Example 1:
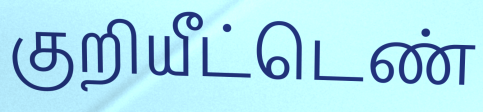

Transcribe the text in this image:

குறியீட்டெண்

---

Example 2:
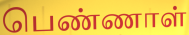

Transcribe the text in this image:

பெண்ணாள்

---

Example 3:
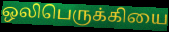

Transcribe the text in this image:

ஒலிபெருக்கியை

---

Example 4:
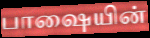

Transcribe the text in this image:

பாஷையின்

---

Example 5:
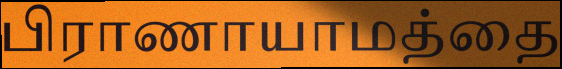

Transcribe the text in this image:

பிராணாயாமத்தை